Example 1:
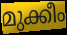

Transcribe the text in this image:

മുക്കീം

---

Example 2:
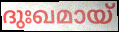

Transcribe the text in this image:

ദുഃഖമായ്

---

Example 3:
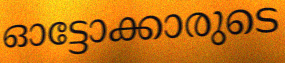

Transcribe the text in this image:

ഓട്ടോക്കാരുടെ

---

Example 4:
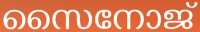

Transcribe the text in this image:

സൈനോജ്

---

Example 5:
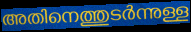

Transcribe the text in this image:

അതിനെത്തുടർന്നുള്ള